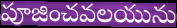
పూజించవలయును